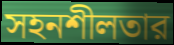
সহনশীলতার